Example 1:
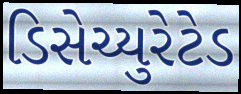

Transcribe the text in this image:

ડિસેચ્યુરેટેડ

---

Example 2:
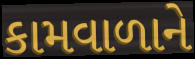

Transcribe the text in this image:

કામવાળાને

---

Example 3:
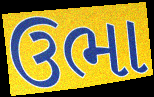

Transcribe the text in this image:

ઉભા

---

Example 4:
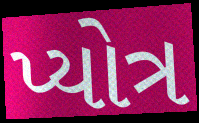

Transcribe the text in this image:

પ્યોત્ર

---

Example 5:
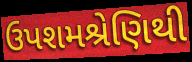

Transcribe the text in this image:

ઉપશમશ્રેણિથી